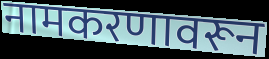
नामकरणावरून